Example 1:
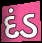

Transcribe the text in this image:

દંડ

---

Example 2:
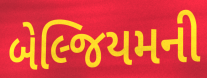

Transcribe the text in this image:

બેલ્જિયમની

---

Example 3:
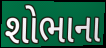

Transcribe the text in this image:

શોભાના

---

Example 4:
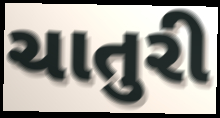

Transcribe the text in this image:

ચાતુરી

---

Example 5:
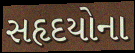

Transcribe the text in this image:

સહૃદયોના